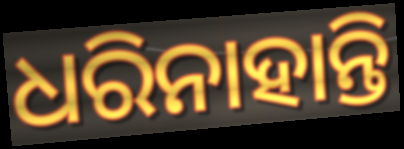
ଧରିନାହାନ୍ତି